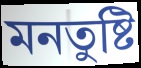
মনতুষ্টি